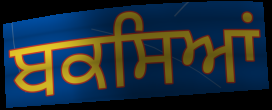
ਬਕਸਿਆਂ